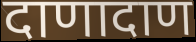
दाणादाण